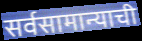
सर्वसामान्याची